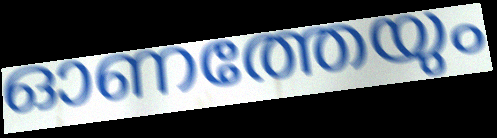
ഓണത്തേയും